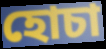
হোচা